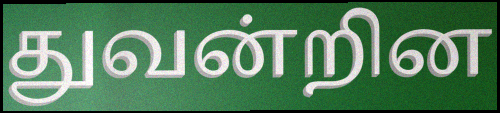
துவன்றின